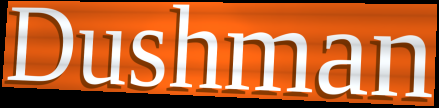
Dushman